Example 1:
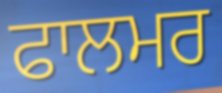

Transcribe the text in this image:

ਫਾਲਮਰ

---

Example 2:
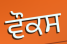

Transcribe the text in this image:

ਵੌਕਸ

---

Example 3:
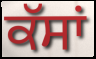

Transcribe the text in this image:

ਕੱਸਾਂ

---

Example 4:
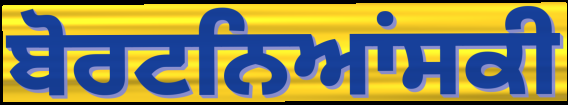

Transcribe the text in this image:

ਬੋਰਟਨਿਆਂਸਕੀ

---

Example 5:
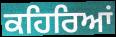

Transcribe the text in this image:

ਕਹਿਰਿਆਂ